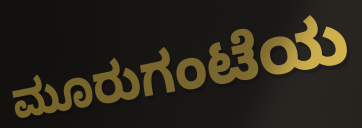
ಮೂರುಗಂಟೆಯ